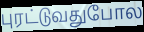
புரட்டுவதுபோல